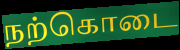
நற்கொடை